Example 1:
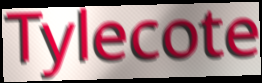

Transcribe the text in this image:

Tylecote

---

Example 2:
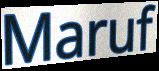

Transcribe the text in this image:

Maruf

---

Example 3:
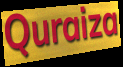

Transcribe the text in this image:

Quraiza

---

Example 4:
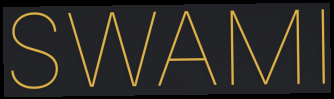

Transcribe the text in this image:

SWAMI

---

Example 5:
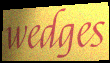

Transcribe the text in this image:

wedges